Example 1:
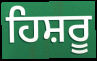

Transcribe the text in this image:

ਹਿਸ਼ਰੂ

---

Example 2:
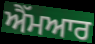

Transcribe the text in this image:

ਐੱਮਆਰ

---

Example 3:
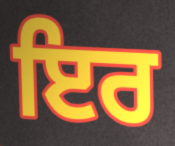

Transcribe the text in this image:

ਇਰ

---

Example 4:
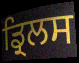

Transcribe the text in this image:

ਡ੍ਰਿਲਸ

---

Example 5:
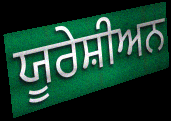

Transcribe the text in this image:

ਯੂਰੇਸ਼ੀਅਨ